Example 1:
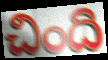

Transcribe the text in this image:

చింది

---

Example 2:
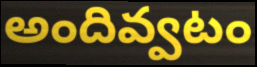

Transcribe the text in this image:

అందివ్వటం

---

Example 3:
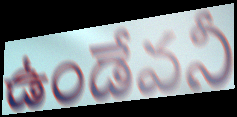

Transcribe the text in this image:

ఉండేవనీ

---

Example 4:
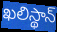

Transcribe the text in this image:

ఖలిస్థాన్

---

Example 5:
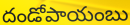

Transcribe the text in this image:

దండోపాయంబు